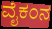
ವೈಕಂನ